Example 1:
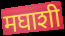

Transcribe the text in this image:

मघाशी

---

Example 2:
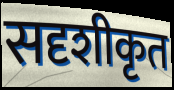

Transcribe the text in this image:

सदृशीकृत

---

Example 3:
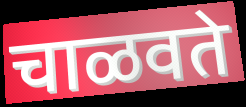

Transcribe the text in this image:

चाळवते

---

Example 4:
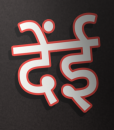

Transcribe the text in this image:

देंई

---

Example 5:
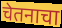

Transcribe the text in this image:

चेतनाचा